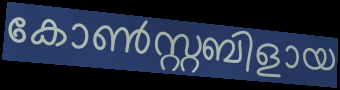
കോൺസ്റ്റബിളായ